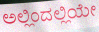
ಅಲ್ಲಿಂದಲ್ಲಿಯೇ